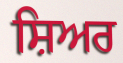
ਸ਼ਿਅਰ